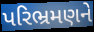
પરિભ્રમણને